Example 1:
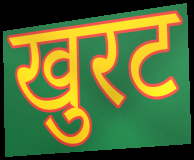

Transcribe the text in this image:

खुरट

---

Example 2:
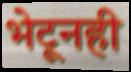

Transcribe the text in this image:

भेटूनही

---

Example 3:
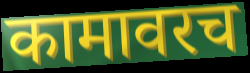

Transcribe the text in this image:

कामावरच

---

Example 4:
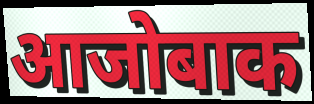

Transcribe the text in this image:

आजोबाक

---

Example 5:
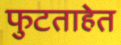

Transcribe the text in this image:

फुटताहेत